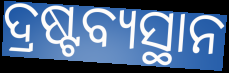
ଦ୍ରଷ୍ଟବ୍ୟସ୍ଥାନ